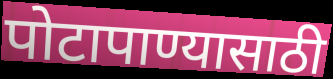
पोटापाण्यासाठी